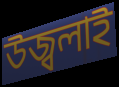
উজ্বলাই